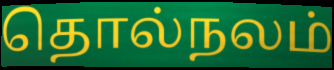
தொல்நலம்